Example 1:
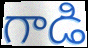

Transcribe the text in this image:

గాడి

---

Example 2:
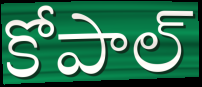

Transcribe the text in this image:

కోపాల్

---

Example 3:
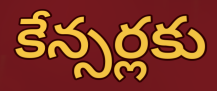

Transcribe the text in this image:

కేన్సర్లకు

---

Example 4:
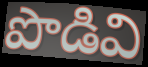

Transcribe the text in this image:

పొడివి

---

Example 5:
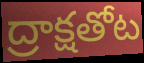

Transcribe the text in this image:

ద్రాక్షతోట